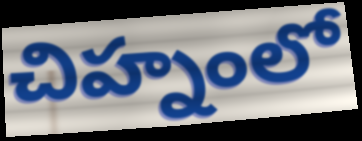
చిహ్నంలో